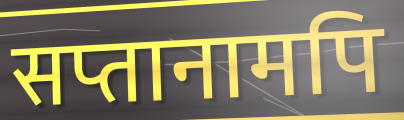
सप्तानामपि